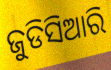
ଜୁଡିସିଆରି